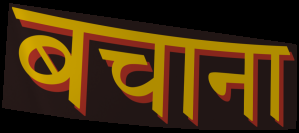
बचाना